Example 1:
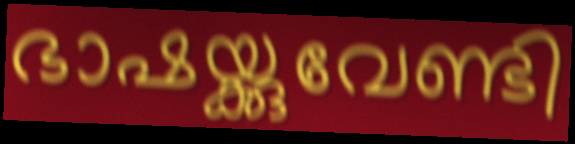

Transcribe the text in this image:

ഭാഷയ്ക്കുവേണ്ടി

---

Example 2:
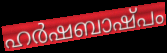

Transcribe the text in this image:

ഹർഷബാഷ്പം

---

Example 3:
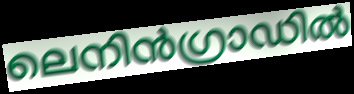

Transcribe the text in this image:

ലെനിൻഗ്രാഡിൽ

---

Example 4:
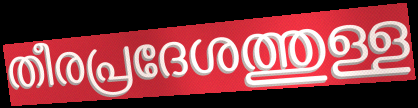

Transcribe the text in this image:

തീരപ്രദേശത്തുള്ള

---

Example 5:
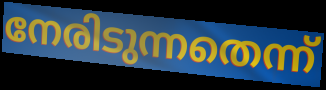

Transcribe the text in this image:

നേരിടുന്നതെന്ന്